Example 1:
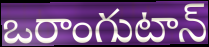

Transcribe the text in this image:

ఒరాంగుటాన్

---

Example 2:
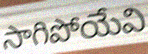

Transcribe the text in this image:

సాగిపోయేవి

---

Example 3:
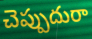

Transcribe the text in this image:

చెప్పుదురా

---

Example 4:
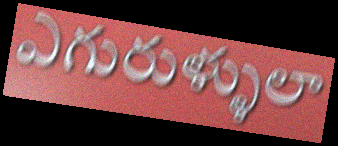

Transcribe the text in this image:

ఎగురుళ్ళులా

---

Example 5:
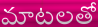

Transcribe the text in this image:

మాటలతో